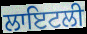
ਲਾਇਟਲੀ